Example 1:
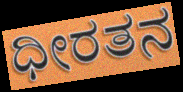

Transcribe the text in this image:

ಧೀರತನ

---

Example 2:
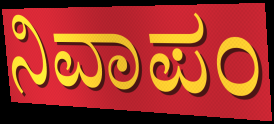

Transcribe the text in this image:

ನಿವಾಪಂ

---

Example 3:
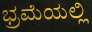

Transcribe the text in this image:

ಭ್ರಮೆಯಲ್ಲಿ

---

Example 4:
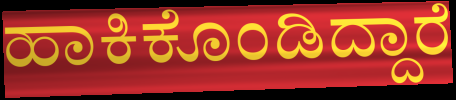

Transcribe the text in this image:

ಹಾಕಿಕೊಂಡಿದ್ದಾರೆ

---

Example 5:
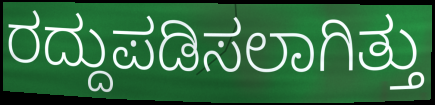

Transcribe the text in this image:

ರದ್ದುಪಡಿಸಲಾಗಿತ್ತು